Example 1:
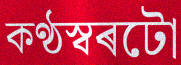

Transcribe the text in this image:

কণ্ঠস্বৰটো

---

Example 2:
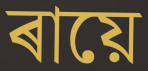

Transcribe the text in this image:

ৰায়ে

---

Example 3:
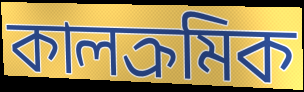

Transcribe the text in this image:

কালক্ৰমিক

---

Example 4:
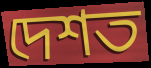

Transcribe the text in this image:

দেশত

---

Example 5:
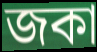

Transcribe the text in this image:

জকা